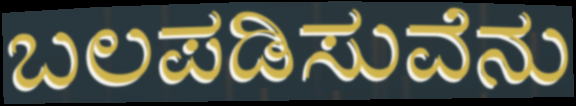
ಬಲಪಡಿಸುವೆನು